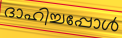
ദാഹിച്ചപ്പോൾ